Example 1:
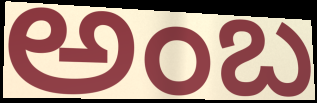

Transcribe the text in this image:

అంబ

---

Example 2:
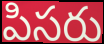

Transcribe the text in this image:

పిసరు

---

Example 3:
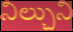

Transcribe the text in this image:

నిల్చుని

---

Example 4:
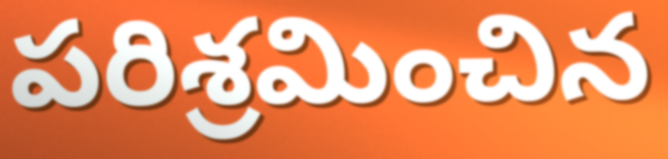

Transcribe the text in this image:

పరిశ్రమించిన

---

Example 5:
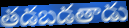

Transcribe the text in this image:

తడబడతాడు